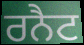
ਰਨੈਟ